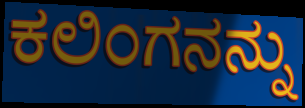
ಕಲಿಂಗನನ್ನು